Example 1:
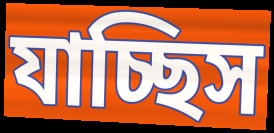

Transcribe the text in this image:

যাচ্ছিস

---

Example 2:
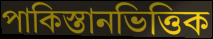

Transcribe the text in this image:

পাকিস্তানভিত্তিক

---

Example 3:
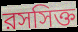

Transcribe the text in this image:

রসসিক্ত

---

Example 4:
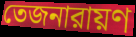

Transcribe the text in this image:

তেজনারায়ণ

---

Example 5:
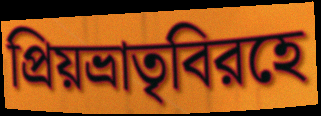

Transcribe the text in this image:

প্রিয়ভ্রাতৃবিরহে